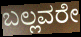
ಬಲ್ಲವರೇ